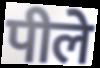
पीले